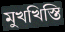
মুখখিস্তি